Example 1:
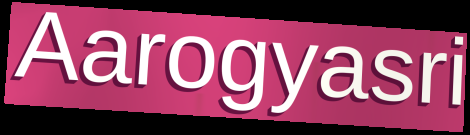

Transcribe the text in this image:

Aarogyasri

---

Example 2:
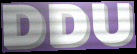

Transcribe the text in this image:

DDU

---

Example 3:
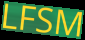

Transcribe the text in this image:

LFSM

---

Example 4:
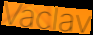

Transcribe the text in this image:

Vaclav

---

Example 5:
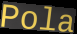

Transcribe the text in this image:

Pola